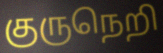
குருநெறி